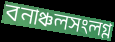
বনাঞ্চলসংলগ্ন